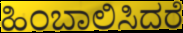
ಹಿಂಬಾಲಿಸಿದರೆ